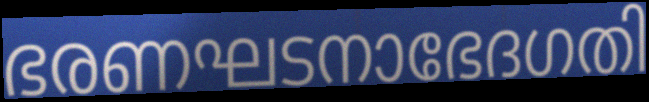
ഭരണഘടനാഭേദഗതി